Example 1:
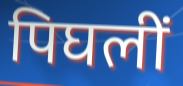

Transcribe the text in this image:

पिघलीं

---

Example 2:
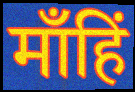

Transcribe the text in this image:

माँहिं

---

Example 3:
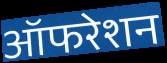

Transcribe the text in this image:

ऑफरेशन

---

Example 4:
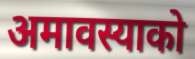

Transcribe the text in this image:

अमावस्याको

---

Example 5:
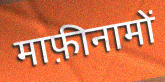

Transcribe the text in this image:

माफ़ीनामों